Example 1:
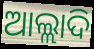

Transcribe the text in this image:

ଆଲ୍ଲାଦି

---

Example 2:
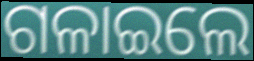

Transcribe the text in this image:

ଗଳାଇଲେ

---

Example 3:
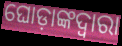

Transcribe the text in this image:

ଘୋଡ଼ାଙ୍କଦ୍ୱାରା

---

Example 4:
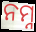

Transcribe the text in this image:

ନମ୍ନ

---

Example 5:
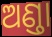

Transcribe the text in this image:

ଅଣ୍ଡା